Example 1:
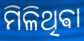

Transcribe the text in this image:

ମିଳିଥିଵା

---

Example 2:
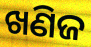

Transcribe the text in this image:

ଖଣିଜ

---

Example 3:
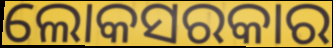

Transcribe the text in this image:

ଲୋକସରକାର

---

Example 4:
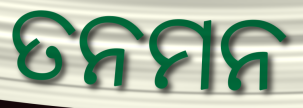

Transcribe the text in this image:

ତନମନ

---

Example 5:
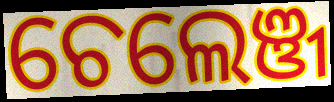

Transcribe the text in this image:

ଚେଲେଞ୍ଜ